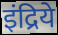
इंद्रिये